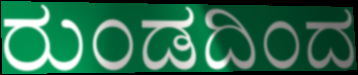
ರುಂಡದಿಂದ